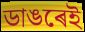
ডাঙৰেই